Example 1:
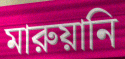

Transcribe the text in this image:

মারুয়ানি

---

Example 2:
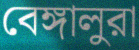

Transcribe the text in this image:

বেঙ্গালুরা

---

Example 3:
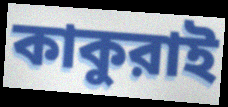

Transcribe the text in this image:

কাকুরাই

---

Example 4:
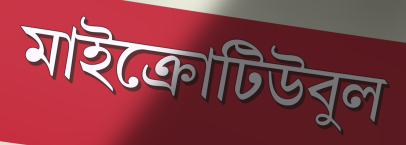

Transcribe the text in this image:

মাইক্রোটিউবুল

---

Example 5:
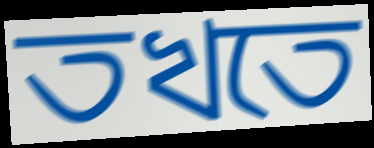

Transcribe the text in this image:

তখতে